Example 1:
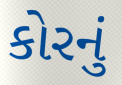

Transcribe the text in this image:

કોરનું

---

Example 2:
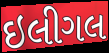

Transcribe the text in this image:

ઇલીગલ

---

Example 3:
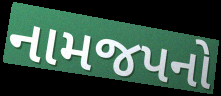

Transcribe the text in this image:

નામજપનો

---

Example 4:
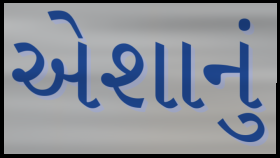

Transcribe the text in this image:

એશાનું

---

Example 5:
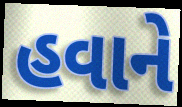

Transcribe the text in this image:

હવાને